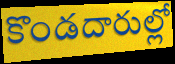
కొండదారుల్లో